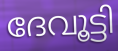
ദേവൂട്ടി